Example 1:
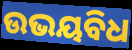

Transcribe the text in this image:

ଉଭୟବିଧ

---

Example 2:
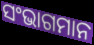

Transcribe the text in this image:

ସଂଭାଗମାନ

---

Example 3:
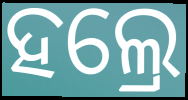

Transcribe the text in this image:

ହଲ୍ରେ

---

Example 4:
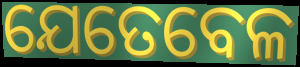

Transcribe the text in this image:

ଯେତେବେଳ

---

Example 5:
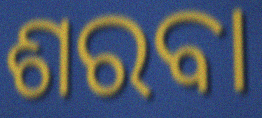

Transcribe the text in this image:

ଶରବା